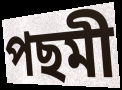
পছমী